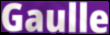
Gaulle